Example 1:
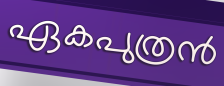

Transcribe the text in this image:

ഏകപുത്രൻ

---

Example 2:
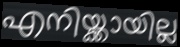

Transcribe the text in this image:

എനിയ്ക്കായില്ല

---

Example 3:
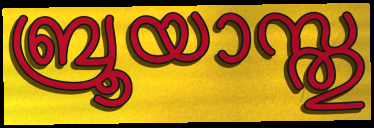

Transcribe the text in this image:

ബ്രൂയാസ്തു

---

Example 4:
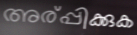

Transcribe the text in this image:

അര്പ്പിക്കുക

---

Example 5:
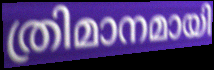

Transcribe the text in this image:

ത്രിമാനമായി